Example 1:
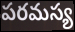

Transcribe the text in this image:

పరమస్య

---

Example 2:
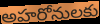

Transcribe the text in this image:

అహరోనులకు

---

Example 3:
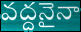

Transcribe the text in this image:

వద్దనైనా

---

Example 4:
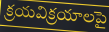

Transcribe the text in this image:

క్రయవిక్రయాలపై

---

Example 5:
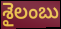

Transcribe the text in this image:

శైలంబు